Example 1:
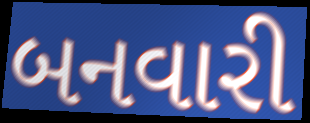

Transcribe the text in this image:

બનવારી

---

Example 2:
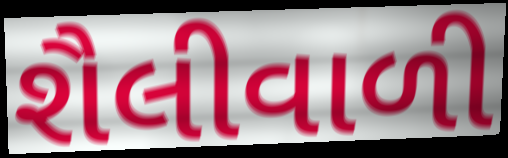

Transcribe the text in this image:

શૈલીવાળી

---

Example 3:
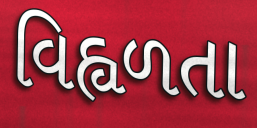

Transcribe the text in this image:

વિહ્વળતા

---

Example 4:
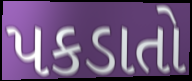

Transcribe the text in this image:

પકડાતો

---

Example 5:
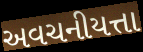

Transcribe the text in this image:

અવચનીયત્તા